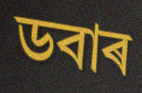
ডবাৰ